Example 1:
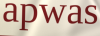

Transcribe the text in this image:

apwas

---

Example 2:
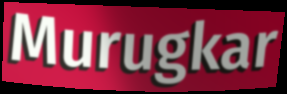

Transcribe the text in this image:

Murugkar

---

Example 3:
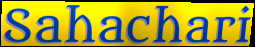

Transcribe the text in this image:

Sahachari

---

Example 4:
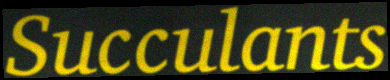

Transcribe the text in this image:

Succulants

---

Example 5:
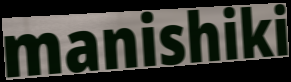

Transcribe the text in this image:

manishiki